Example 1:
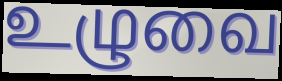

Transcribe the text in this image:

உழுவை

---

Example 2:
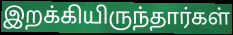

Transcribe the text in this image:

இறக்கியிருந்தார்கள்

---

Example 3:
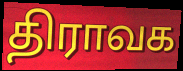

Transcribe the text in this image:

திராவக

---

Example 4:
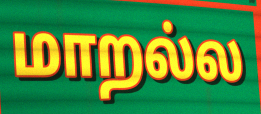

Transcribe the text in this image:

மாறல்ல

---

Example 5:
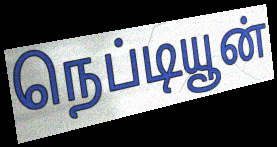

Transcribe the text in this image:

நெப்டியூன்